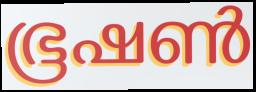
ഭൂഷൺ